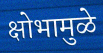
क्षोभामुळे